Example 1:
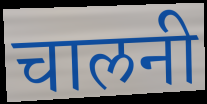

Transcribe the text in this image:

चालनी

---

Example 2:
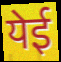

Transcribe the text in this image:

येई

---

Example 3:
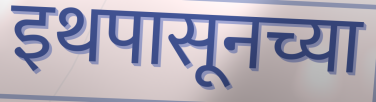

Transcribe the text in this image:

इथपासूनच्या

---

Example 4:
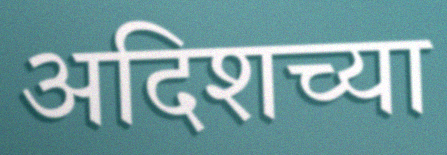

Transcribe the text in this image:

अदिशच्या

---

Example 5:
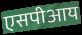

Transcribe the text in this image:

एसपीआय